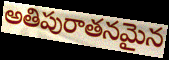
అతిపురాతనమైన